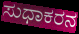
ಸುಧಾಕರನ